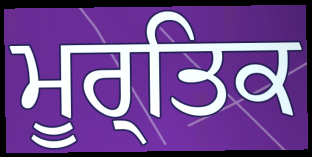
ਮੂਰ੍ਤਿਕ